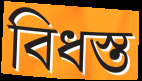
বিধস্ত